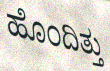
ಹೊಂದಿತ್ತು